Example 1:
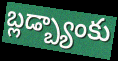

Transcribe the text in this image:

బ్లడ్బ్యాంకు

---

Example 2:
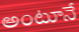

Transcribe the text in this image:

అంటూనే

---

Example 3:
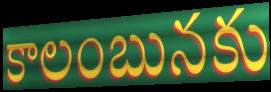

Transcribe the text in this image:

కాలంబునకు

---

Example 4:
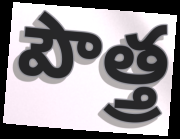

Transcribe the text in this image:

పౌత్త్ర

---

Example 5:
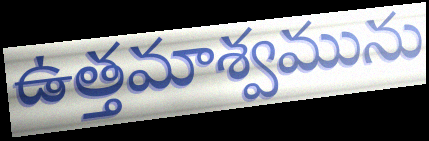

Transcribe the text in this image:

ఉత్తమాశ్వమును